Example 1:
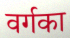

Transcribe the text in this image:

वर्गका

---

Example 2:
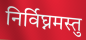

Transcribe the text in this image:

निर्विघ्नमस्तु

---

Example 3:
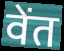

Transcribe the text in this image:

वेंत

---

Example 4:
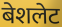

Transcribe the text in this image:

बेशलेट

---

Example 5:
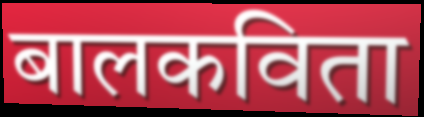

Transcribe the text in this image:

बालकविता